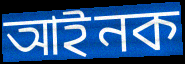
আইনক